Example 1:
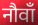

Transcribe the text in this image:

नौवाँ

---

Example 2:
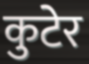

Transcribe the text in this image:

कुटेर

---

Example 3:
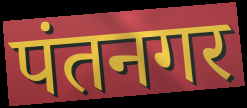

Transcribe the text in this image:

पंतनगर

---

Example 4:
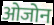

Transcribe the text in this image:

ओजोन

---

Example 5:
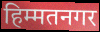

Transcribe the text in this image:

हिम्‍मतनगर